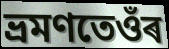
ভ্ৰমণতেওঁৰ